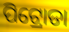
ପିଟ୍ରୋଡା